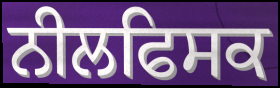
ਨੀਲਫਿਸਕ